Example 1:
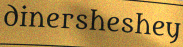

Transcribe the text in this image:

dinersheshey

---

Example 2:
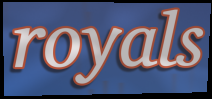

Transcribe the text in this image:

royals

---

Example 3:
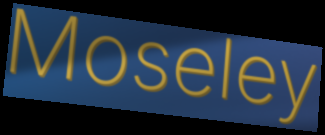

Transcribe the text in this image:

Moseley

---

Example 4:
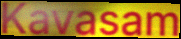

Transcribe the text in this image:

Kavasam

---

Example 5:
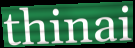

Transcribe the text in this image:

thinai